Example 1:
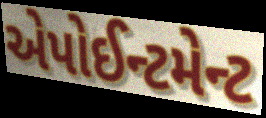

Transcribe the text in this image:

એપોઈન્ટમેન્ટ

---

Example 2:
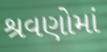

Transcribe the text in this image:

શ્રવણોમાં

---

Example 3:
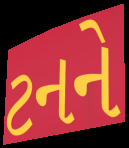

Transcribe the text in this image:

ટનને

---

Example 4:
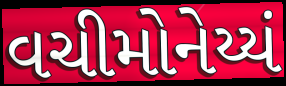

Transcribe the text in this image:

વચીમોનેય્યં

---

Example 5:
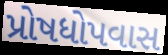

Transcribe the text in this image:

પ્રોષધોપવાસ